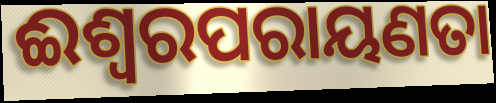
ଈଶ୍ୱରପରାୟଣତା